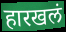
हारखलं